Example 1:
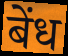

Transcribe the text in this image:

बेंध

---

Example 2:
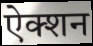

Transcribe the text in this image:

ऐक्‍शन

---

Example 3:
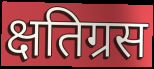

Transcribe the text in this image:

क्षतिग्रस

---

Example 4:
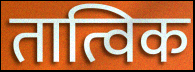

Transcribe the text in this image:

तात्विक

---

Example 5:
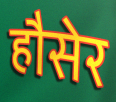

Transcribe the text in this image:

हौसेर